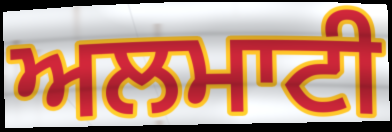
ਅਲਮਾਟੀ